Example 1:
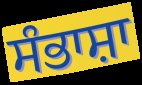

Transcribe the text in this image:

ਸੰਭਾਸ਼ਾ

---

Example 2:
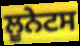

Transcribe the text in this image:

ਲੂਨੇਟਸ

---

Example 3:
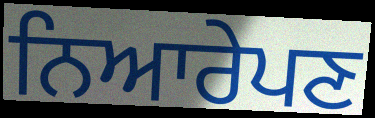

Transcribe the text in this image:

ਨਿਆਰੇਪਣ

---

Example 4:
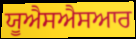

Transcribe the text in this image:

ਯੂਐਸਐਸਆਰ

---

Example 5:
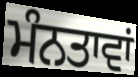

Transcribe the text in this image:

ਮੰਨਤਾਵਾਂ